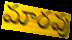
మారవు